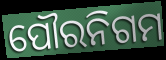
ପୌରନିଗମ